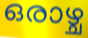
ഒരാഴ്ച